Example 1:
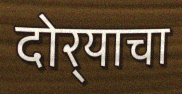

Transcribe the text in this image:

दोर्‍याचा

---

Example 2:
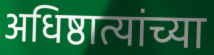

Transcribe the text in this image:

अधिष्ठात्यांच्या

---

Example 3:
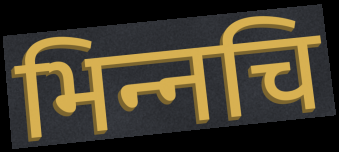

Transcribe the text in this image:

भिन्नचि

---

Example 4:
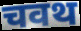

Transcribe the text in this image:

चवथ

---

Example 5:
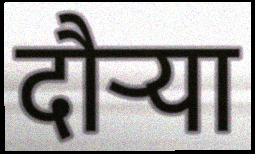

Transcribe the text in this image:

दौऱ्या